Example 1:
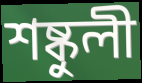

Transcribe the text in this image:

শষ্কুলী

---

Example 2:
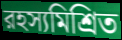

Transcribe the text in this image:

রহস্যমিশ্রিত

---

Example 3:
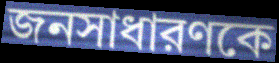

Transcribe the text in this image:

জনসাধারণকে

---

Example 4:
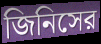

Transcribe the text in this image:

জিনিসের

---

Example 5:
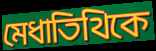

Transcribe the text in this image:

মেধাতিথিকে